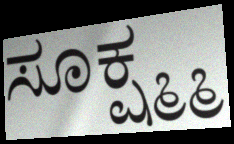
ಸೂಕ್ಷ್ಮ್ಮ